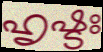
ഹൃഷ്ടഃ